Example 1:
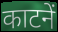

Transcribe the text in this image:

काटनें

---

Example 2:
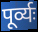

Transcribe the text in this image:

पूर्व्यः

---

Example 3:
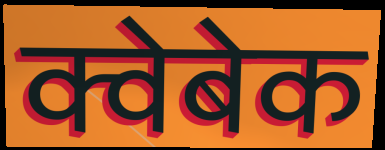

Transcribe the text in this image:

क्वेबेक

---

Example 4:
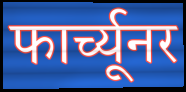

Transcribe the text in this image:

फार्च्यूनर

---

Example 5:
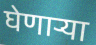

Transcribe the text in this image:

घेणाऱ्या